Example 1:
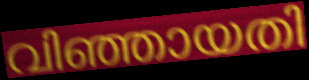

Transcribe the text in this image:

വിഞ്ഞായതി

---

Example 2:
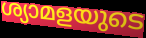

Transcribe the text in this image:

ശ്യാമളയുടെ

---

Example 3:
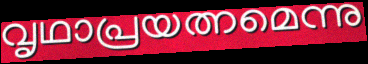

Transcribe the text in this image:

വൃഥാപ്രയത്നമെന്നു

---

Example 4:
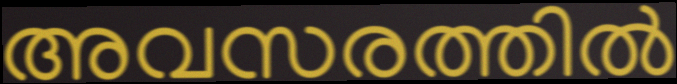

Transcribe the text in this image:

അവസരത്തിൽ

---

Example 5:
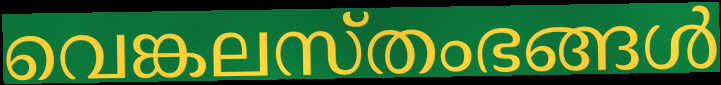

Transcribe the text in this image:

വെങ്കലസ്തംഭങ്ങൾ